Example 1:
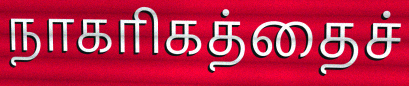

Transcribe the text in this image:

நாகரிகத்தைச்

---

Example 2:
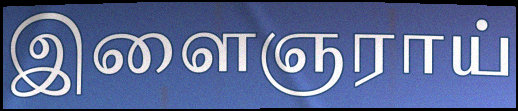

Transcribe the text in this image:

இளைஞராய்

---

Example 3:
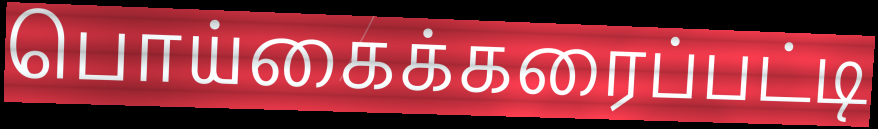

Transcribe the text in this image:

பொய்கைக்கரைப்பட்டி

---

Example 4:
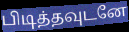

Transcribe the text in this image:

பிடித்தவுடனே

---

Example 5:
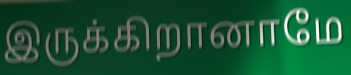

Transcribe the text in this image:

இருக்கிறானாமே